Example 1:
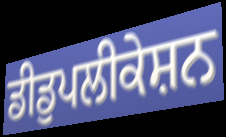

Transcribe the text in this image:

ਡੀਡੁਪਲੀਕੇਸ਼ਨ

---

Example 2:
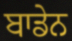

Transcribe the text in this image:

ਬਾਡੇਨ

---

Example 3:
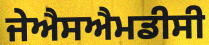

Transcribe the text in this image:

ਜੇਐਸਐਮਡੀਸੀ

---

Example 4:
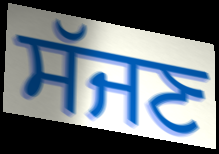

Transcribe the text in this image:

ਸੱਜਣ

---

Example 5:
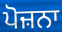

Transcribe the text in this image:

ਪੋਜ਼ਨਾ